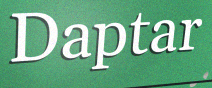
Daptar